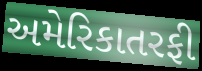
અમેરિકાતરફી